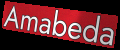
Amabeda